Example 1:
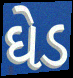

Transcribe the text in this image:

ઘેડ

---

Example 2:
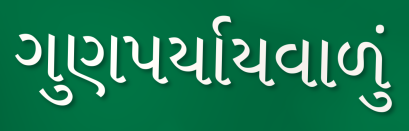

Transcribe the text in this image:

ગુણપર્યાયવાળું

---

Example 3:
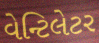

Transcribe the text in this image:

વેન્ટિલેટર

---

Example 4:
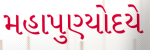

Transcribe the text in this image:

મહાપુણ્યોદયે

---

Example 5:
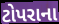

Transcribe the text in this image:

ટોપરાના